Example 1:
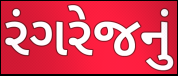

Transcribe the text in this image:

રંગરેજનું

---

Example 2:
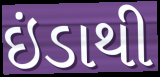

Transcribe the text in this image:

ઇંડાથી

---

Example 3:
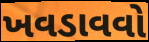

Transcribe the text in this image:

ખવડાવવો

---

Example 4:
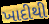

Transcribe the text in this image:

ખાદીથી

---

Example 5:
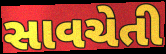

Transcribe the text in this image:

સાવચેતી